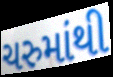
ચરુમાંથી